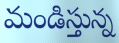
మండిస్తున్న